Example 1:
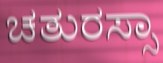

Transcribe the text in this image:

ಚತುರಸ್ಸಾ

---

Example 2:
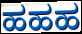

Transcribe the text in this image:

ಹಹಹ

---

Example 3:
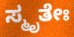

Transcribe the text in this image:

ಸ್ಮೃತೇಃ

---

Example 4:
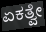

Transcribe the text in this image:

ಏಕತ್ವೇ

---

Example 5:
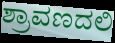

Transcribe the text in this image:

ಶ್ರಾವಣದಲಿ